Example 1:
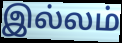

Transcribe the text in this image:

இல்லம்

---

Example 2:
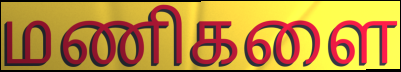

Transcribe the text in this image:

மணிகளை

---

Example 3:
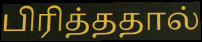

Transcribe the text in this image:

பிரித்ததால்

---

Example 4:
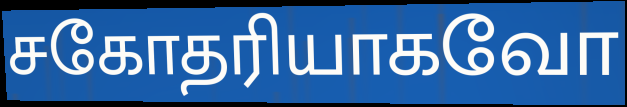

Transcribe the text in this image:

சகோதரியாகவோ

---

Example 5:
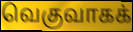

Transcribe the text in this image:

வெகுவாகக்